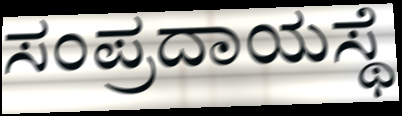
ಸಂಪ್ರದಾಯಸ್ಥೆ